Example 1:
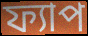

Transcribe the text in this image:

ফ্যাপ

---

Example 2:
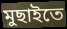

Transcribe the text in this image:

মুছাইতে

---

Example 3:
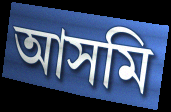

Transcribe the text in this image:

আসমি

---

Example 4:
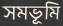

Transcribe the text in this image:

সমভূমি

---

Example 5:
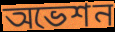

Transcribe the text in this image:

অভেশন